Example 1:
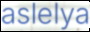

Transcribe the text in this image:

aslelya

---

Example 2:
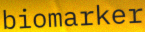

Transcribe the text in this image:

biomarker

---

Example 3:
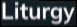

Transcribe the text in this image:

Liturgy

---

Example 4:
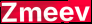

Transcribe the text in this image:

Zmeev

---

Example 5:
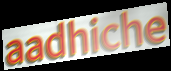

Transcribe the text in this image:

aadhiche